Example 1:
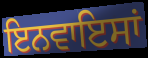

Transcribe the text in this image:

ਇਨਵਾਇਸਾਂ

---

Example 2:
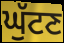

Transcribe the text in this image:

ਘੁੱਟਣ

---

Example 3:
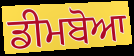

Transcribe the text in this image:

ਡੀਮਬੋਆ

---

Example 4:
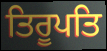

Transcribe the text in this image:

ਤਿਰੂਪਤਿ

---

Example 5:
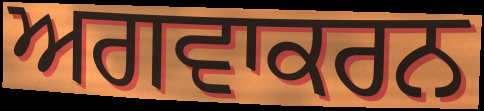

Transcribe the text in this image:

ਅਗਵਾਕਰਨ